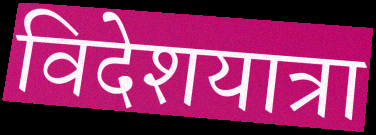
विदेशयात्रा